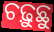
ଚଢ଼ୁଛୁ